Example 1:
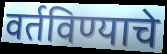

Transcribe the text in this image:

वर्तविण्याचे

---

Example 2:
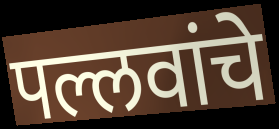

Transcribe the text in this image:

पल्लवांचे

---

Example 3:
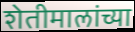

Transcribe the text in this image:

शेतीमालांच्या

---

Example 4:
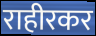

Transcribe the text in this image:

राहीरकर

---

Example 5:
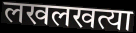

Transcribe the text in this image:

लखलखत्या